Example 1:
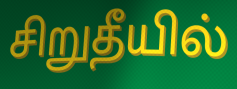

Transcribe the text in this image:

சிறுதீயில்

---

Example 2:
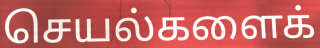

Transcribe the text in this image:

செயல்களைக்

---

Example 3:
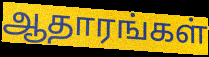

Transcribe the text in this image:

ஆதாரங்கள்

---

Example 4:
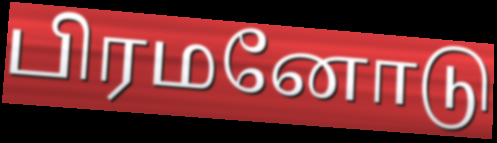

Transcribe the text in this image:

பிரமனோடு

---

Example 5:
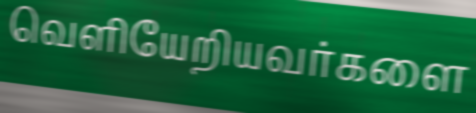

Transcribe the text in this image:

வெளியேறியவர்களை